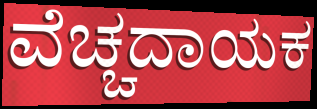
ವೆಚ್ಚದಾಯಕ